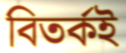
বিতৰ্কই